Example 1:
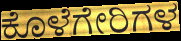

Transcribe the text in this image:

ಕೊಳೆಗೇರಿಗಳ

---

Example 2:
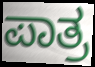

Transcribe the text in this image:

ಪಾತ್ರ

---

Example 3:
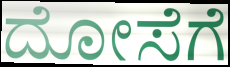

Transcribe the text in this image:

ದೋಸೆಗೆ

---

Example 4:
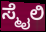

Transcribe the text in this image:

ಸ್ಮೈಲಿ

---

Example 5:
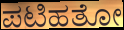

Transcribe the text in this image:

ಪಟಿಹತೋ